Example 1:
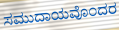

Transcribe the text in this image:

ಸಮುದಾಯವೊಂದರ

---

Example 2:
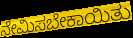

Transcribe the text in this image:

ನೇಮಿಸಬೇಕಾಯಿತು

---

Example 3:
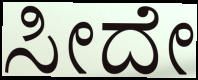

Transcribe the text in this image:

ಸೀದೇ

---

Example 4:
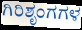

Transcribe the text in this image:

ಗಿರಿಶೃಂಗಗಳ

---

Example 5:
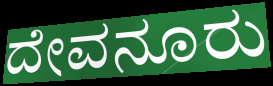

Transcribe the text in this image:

ದೇವನೂರು